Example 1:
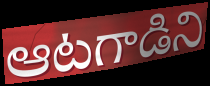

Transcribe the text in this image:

ఆటగాడిని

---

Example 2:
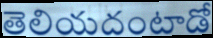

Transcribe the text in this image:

తెలియదంటాడో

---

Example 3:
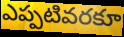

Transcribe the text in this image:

ఎప్పటివరకూ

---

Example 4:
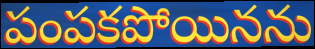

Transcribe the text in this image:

పంపకపోయినను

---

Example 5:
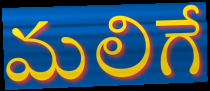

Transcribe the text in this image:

మలిగే